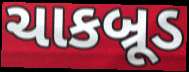
ચાકબ્રૂડ